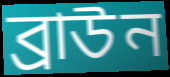
ব্রাউন